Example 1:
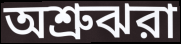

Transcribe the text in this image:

অশ্রুঝরা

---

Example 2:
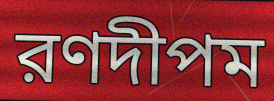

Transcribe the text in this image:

রণদীপম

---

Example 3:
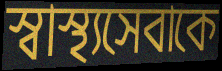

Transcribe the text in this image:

স্বাস্থ্যসেবাকে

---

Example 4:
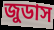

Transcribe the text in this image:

জুডাস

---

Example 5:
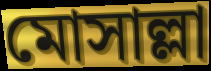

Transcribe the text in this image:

মোসাল্লা